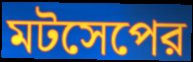
মটসেপের